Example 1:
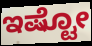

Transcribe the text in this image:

ಇಷ್ಟೋ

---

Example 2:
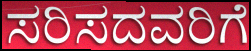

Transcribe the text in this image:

ಸರಿಸದವರಿಗೆ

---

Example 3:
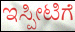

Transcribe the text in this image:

ಇಸ್ಪೀಟಿಗೆ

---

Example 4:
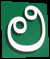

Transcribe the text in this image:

ಲಿ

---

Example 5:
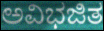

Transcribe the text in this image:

ಅವಿಭಜಿತ